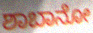
ಶಾಬಾನೋ